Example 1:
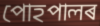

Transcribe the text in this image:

পোহপালৰ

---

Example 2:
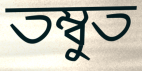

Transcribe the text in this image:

তম্বুত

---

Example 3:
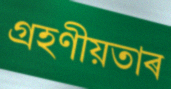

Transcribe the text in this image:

গ্ৰহণীয়তাৰ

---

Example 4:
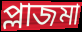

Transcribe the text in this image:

প্লাজমা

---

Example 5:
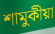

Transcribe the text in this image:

শামুকীয়া